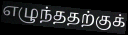
எழுந்ததற்குக்